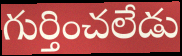
గుర్తించలేడు